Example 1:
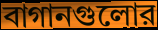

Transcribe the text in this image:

বাগানগুলোর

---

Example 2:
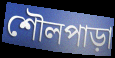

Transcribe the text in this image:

শৌলপাড়া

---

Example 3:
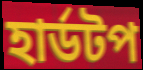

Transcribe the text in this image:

হার্ডটপ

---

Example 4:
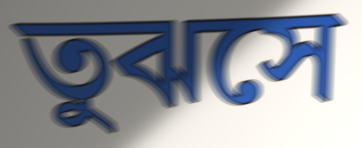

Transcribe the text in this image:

তুঝসে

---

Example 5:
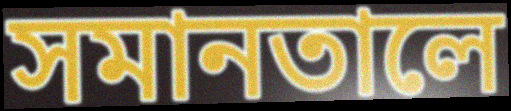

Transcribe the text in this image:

সমানতালে